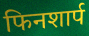
फिनशार्प